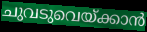
ചുവടുവെയ്ക്കാൻ